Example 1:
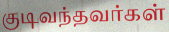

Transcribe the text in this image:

குடிவந்தவர்கள்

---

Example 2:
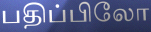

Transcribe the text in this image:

பதிப்பிலோ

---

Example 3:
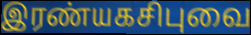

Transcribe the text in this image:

இரண்யகசிபுவை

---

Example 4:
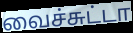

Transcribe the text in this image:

வைச்சுட்டா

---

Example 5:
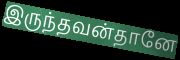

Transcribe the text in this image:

இருந்தவன்தானே